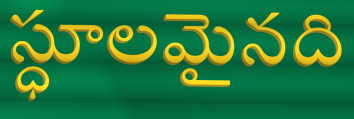
స్ధూలమైనది